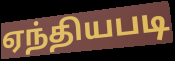
ஏந்தியபடி